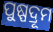
ପୁଷ୍ପଦ୍ରୂମ